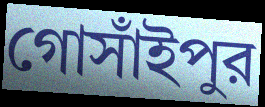
গোসাঁইপুর